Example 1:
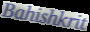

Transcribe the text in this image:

Bahishkrit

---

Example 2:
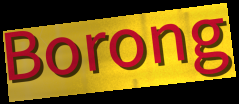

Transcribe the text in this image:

Borong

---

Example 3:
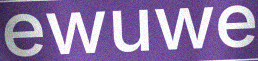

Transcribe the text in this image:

ewuwe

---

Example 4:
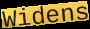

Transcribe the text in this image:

Widens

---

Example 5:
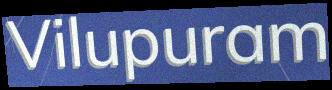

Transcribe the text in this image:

Vilupuram